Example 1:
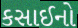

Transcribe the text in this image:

કસાઈનો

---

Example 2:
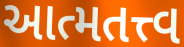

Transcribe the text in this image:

આત્મતત્ત્વ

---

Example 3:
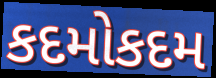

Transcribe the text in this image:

કદમોકદમ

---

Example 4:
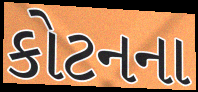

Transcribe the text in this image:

કોટનના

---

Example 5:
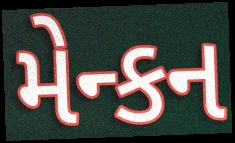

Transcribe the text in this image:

મેન્કન